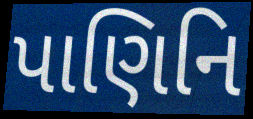
પાણિનિ